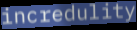
incredulity